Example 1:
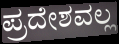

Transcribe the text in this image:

ಪ್ರದೇಶವಲ್ಲ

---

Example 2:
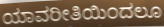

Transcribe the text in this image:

ಯಾವರೀತಿಯಿಂದಲೂ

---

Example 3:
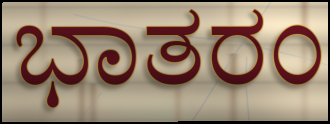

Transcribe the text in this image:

ಭಾತರಂ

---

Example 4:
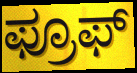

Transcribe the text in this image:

ಫ್ರೂಫ್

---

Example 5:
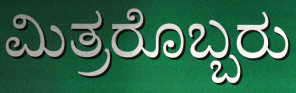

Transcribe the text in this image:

ಮಿತ್ರರೊಬ್ಬರು